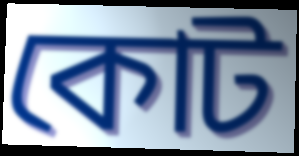
কোট